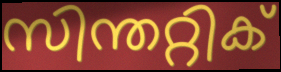
സിന്തറ്റിക്